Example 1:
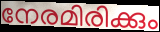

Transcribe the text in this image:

നേരമിരിക്കും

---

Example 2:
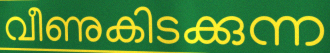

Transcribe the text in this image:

വീണുകിടക്കുന്ന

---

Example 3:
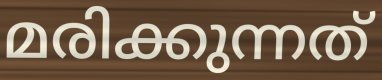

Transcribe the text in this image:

മരിക്കുന്നത്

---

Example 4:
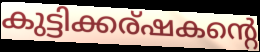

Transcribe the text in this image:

കുട്ടിക്കര്ഷകന്റെ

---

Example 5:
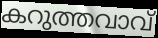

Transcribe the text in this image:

കറുത്തവാവ്